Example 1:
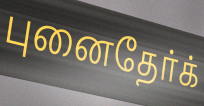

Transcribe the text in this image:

புனைதேர்க்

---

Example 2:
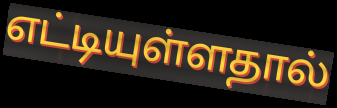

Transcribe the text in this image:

எட்டியுள்ளதால்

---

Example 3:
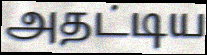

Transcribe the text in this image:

அதட்டிய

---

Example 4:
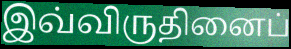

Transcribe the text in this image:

இவ்விருதினைப்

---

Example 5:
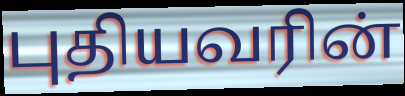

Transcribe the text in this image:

புதியவரின்